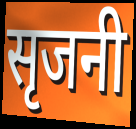
सृजनी